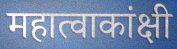
महात्वाकांक्षी